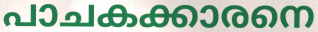
പാചകക്കാരനെ